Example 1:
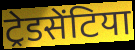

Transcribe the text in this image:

ट्रेडसेंटिया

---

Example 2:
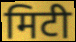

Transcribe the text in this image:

मिटी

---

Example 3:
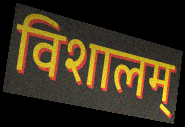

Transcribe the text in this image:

विशालम्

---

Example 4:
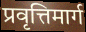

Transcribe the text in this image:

प्रवृत्तिमार्ग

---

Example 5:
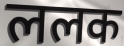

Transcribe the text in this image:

ललक